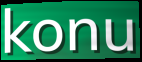
konu